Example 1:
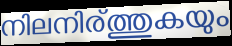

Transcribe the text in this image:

നിലനിര്ത്തുകയും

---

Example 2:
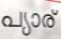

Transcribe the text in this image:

പ്യാര്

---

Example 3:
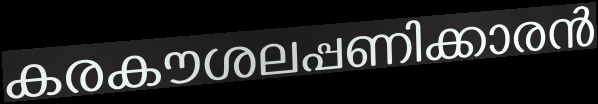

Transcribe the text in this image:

കരകൗശലപ്പണിക്കാരൻ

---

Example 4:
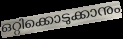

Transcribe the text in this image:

ഒറ്റിക്കൊടുക്കാനും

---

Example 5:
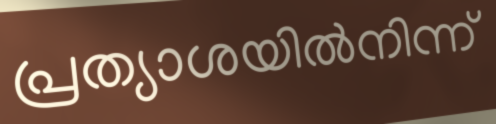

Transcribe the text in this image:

പ്രത്യാശയിൽനിന്ന്